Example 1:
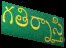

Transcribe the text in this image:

గతిర్నాస్తి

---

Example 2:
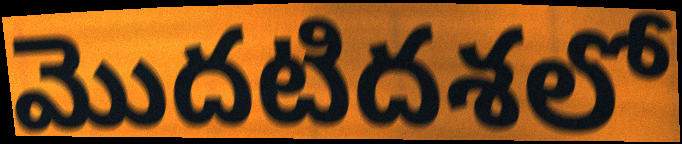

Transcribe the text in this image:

మొదటిదశలో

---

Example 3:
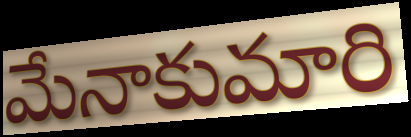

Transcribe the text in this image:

మేనాకుమారి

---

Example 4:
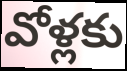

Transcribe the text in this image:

వోళ్లకు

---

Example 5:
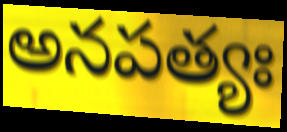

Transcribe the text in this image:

అనపత్యః